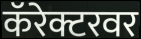
कॅरेक्टरवर